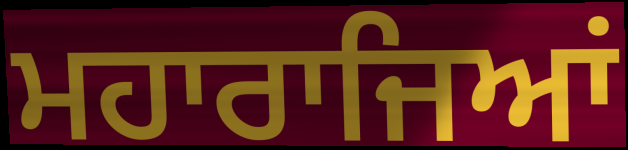
ਮਹਾਰਾਜਿਆਂ